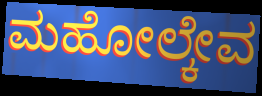
ಮಹೋಲ್ಕೇವ